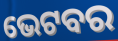
ଭେଟବର